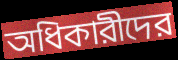
অধিকারীদের